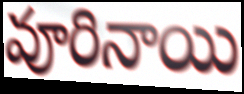
వూరినాయి